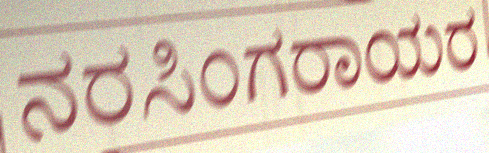
ನರಸಿಂಗರಾಯರ